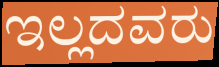
ಇಲ್ಲದವರು